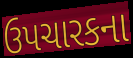
ઉપચારકના